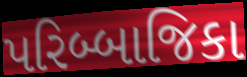
પરિબ્બાજિકા